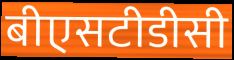
बीएसटीडीसी